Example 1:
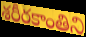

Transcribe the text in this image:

శరీరకాంతిని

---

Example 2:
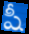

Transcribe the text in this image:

షీ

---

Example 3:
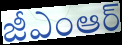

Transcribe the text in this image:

జీఎంఆర్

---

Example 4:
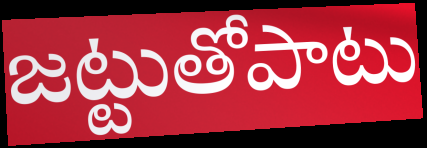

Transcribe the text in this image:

జట్టుతోపాటు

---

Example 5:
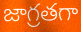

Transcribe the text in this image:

జాగ్రతగా